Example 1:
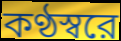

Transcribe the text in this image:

কণ্ঠস্বরে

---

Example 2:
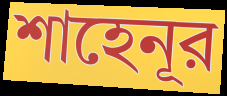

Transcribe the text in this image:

শাহেনূর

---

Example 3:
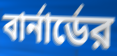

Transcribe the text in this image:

বার্নার্ডের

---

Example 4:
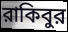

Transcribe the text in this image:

রাকিবুর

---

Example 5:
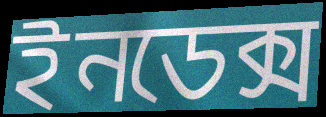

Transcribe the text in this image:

ইনডেক্স